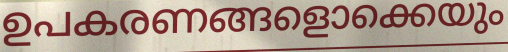
ഉപകരണങ്ങളൊക്കെയും